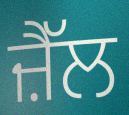
ਜ਼ੈੱਲ